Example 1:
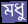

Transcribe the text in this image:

মধু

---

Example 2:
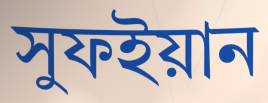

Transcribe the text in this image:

সুফইয়ান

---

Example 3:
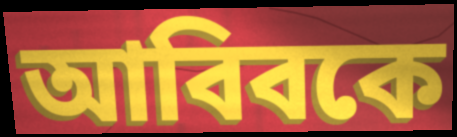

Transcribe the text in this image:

আবিবকে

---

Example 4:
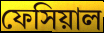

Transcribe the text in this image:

ফেসিয়াল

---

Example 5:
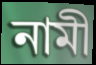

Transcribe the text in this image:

নামী